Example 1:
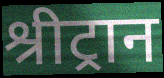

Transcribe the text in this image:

श्रीट्रान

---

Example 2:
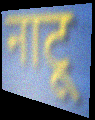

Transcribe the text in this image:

नाटू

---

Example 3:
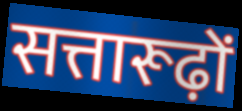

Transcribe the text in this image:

सत्तारूढ़ों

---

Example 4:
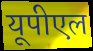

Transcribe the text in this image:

यूपीएल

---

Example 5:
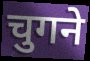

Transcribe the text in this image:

चुगने